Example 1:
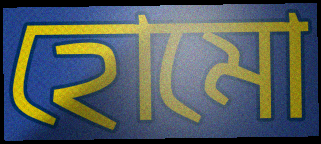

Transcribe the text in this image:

হোমো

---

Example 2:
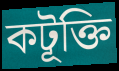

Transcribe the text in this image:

কটূক্তি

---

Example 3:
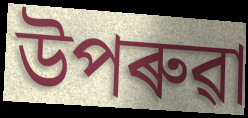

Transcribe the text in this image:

উপৰুৱা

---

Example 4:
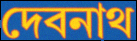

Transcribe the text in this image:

দেবনাথ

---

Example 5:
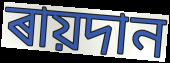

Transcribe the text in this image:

ৰায়দান